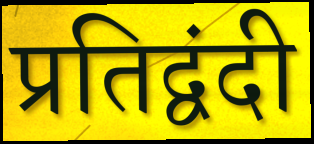
प्रतिद्वंदी